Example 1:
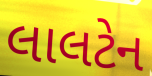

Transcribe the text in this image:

લાલટેન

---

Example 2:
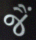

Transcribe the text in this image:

જૈં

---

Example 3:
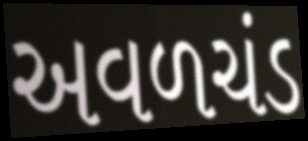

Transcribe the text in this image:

અવળચંડ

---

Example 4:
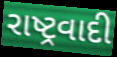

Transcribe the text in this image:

રાષ્ટ્રવાદી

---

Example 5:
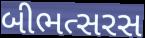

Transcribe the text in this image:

બીભત્સરસ